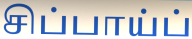
சிப்பாய்ப்